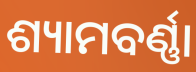
ଶ୍ୟାମବର୍ଣ୍ଣା